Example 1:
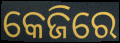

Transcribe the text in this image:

କେଜିରେ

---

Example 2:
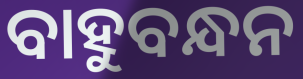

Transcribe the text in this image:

ବାହୁବନ୍ଧନ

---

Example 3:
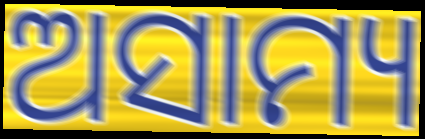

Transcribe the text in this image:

ଅସାମ୍ୟ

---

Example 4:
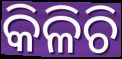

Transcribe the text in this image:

କିଳିଚି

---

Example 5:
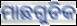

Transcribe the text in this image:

ମାଛଗୁଡିକ